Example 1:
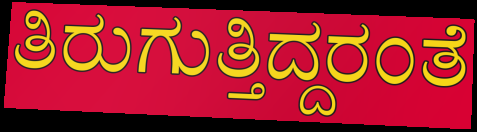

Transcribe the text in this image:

ತಿರುಗುತ್ತಿದ್ದರಂತೆ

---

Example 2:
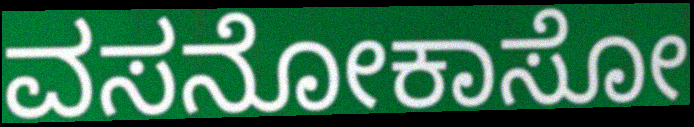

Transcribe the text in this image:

ವಸನೋಕಾಸೋ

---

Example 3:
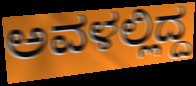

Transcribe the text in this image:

ಅವಳಲ್ಲಿದ್ದ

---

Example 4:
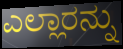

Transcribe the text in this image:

ಎಲ್ಲಾರನ್ನು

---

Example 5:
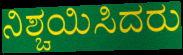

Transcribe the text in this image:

ನಿಶ್ಚಯಿಸಿದರು